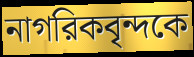
নাগরিকবৃন্দকে